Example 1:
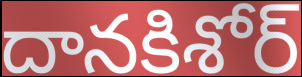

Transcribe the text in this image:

దానకిశోర్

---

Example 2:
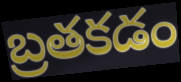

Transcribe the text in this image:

బ్రతకడం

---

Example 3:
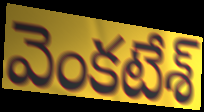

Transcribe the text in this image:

వెంకటేశ్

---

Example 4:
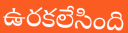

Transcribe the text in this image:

ఉరకలేసింది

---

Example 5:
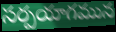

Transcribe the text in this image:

సర్పయాగమున